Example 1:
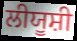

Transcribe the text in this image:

ਲੀਯੂਸ਼ੀ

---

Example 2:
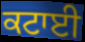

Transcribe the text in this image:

ਕਟਾਈ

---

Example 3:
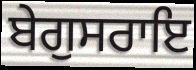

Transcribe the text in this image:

ਬੇਗੁਸਰਾਇ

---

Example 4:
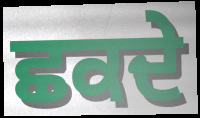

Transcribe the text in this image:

ਛਕਦੇ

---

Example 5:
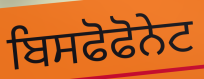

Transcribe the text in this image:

ਬਿਸਫੋਫੋਨੇਟ